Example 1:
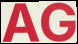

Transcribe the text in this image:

AG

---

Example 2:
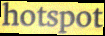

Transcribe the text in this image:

hotspot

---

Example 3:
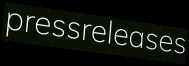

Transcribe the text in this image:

pressreleases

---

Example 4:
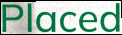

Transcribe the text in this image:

Placed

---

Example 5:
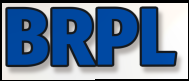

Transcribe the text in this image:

BRPL